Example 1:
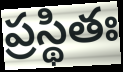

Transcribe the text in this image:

ప్రస్థితః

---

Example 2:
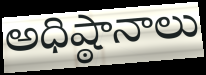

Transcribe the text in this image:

అధిష్ఠానాలు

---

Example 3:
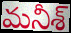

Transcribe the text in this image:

మనీశ్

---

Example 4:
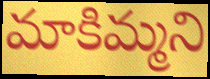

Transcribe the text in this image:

మాకిమ్మని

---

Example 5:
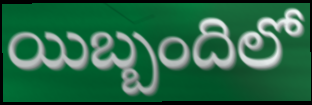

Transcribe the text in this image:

యిబ్బందిలో